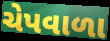
ચેપવાળા